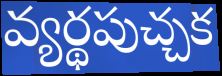
వ్యర్థపుచ్చక